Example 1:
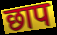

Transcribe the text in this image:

छाप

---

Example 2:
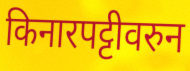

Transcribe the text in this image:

किनारपट्टीवरुन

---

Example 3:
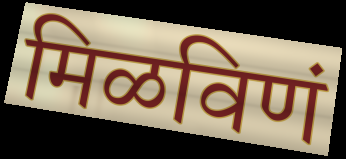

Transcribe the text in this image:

मिळविणं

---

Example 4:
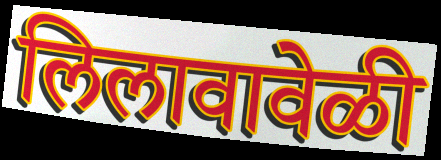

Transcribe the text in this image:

लिलावावेळी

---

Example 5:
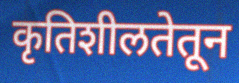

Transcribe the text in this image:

कृतिशीलतेतून